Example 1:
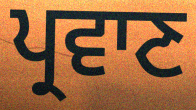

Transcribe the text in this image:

ਪ੍ਰਵਾਣ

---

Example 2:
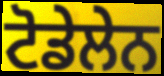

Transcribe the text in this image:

ਟੋਡੇਲੇਨ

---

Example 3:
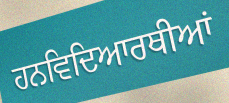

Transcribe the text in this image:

ਹਨਵਿਦਿਆਰਥੀਆਂ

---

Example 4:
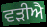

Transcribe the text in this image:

ਵੜੀਐ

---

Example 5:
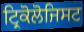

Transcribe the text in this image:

ਟ੍ਰਿਕੋਲੋਜਿਸਟ